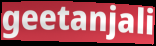
geetanjali